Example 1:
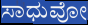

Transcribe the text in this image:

ಸಾಧುವೋ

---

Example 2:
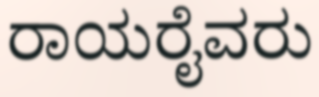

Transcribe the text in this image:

ರಾಯರೈವರು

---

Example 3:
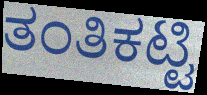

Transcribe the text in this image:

ತಂತಿಕಟ್ಟಿ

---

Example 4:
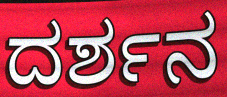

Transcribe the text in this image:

ದರ್ಶನ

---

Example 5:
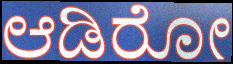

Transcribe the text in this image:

ಆಡಿರೋ